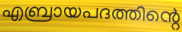
എബ്രായപദത്തിന്റെ